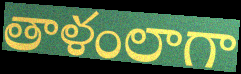
తాళంలాగా